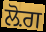
ਲ਼ੋਗ